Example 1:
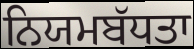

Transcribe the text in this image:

ਨਿਯਮਬੱਧਤਾ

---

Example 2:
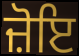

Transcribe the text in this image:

ਜ਼ੋਇ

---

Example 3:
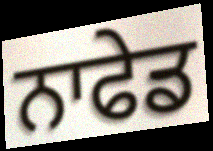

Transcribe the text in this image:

ਨਾਫੇਡ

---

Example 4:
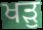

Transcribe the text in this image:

ਖੜੁ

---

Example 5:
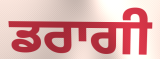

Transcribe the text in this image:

ਡਰਾਗੀ